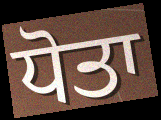
ਧੋਤਾ